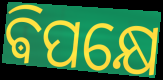
ଵିପକ୍ଷେ